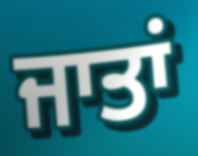
ਜਾਤਾਂ